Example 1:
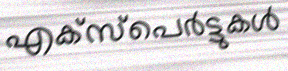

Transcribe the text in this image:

എക്സ്പെർട്ടുകൾ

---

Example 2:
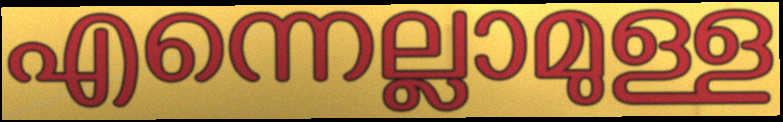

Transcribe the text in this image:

എന്നെല്ലാമുള്ള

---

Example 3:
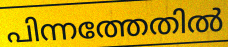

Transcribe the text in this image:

പിന്നത്തേതിൽ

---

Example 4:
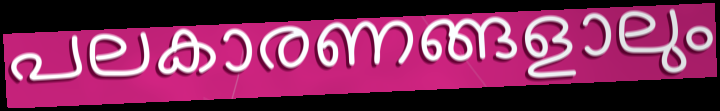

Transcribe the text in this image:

പലകാരണങ്ങളാലും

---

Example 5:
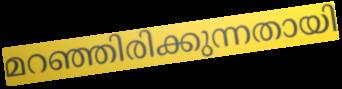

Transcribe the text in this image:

മറഞ്ഞിരിക്കുന്നതായി